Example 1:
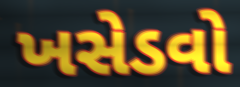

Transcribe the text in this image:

ખસેડવો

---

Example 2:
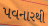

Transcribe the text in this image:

પવનારથી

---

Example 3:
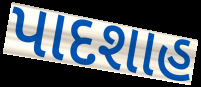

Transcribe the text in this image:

પાદશાહ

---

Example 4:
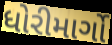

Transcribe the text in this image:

ધોરીમાર્ગો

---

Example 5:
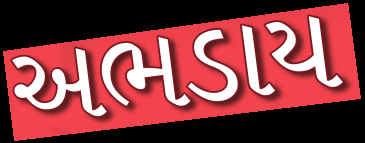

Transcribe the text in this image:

અભડાય